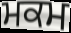
ਮਕਮ